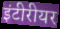
इंटीरीयर